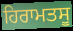
ਹਿਰਾਮਤਸੂ